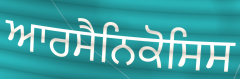
ਆਰਸੈਨਿਕੋਸਿਸ